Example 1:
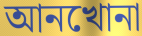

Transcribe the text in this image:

আনখোনা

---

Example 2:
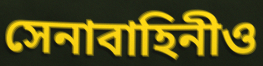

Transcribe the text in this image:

সেনাবাহিনীও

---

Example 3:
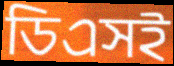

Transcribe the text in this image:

ডিএসই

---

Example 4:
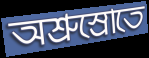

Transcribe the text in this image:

অশ্রুস্রোতে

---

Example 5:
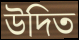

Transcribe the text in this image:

উদিত